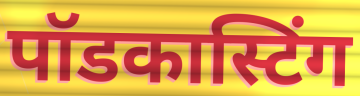
पॉडकास्टिंग